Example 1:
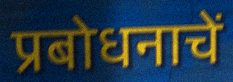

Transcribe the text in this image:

प्रबोधनाचें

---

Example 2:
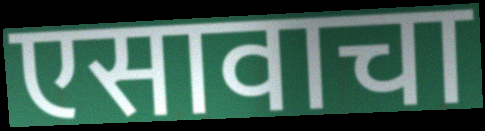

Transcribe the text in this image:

एसावाचा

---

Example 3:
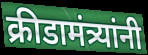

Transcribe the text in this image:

क्रीडामंत्र्यांनी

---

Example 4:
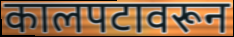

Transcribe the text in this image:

कालपटावरून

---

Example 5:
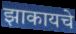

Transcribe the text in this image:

झाकायचे